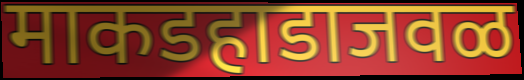
माकडहाडाजवळ